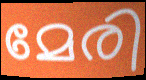
മേരി